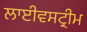
ਲਾਈਵਸਟ੍ਰੀਮ